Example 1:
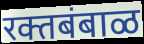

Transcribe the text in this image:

रक्‍तबंबाळ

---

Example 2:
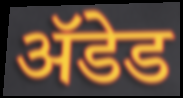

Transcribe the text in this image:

ॲडेड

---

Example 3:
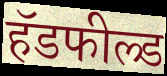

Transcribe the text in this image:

हॅडफील्ड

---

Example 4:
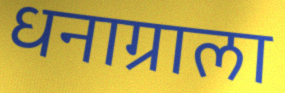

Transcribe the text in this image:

धनाग्राला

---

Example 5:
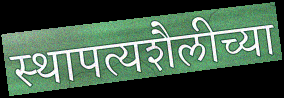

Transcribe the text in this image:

स्थापत्यशैलीच्या